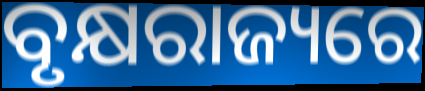
ବୃକ୍ଷରାଜ୍ୟରେ